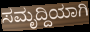
ಸಮೃದ್ದಿಯಾಗಿ